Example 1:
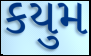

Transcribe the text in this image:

કયુમ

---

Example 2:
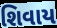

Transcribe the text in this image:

શિવાય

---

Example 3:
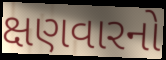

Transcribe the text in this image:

ક્ષણવારનો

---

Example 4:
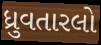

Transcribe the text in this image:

ધ્રુવતારલો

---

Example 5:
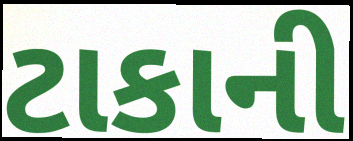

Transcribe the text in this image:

ટાકાની